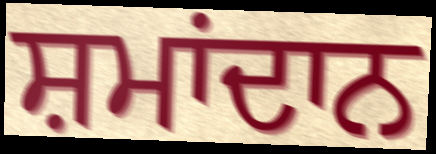
ਸ਼ਮਾਂਦਾਨ